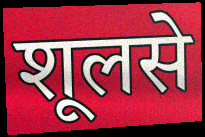
शूलसे